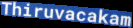
Thiruvacakam